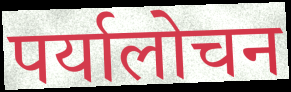
पर्यालोचन